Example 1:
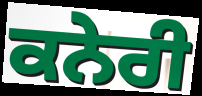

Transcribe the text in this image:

ਕਨੇਰੀ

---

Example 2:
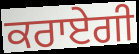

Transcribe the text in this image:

ਕਰਾਏਗੀ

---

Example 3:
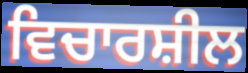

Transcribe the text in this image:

ਵਿਚਾਰਸ਼ੀਲ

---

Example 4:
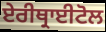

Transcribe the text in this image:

ਏਰੀਥ੍ਰਾਈਟੋਲ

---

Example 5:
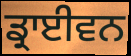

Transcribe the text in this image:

ਡ੍ਰਾਈਵਨ